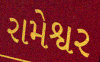
રામેશ્વર